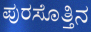
ಪುರಸೊತ್ತಿನ